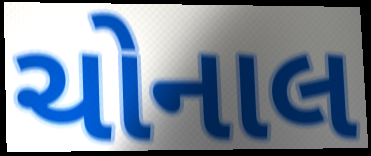
ચોનાલ